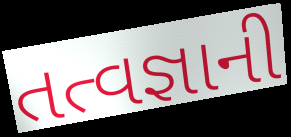
તત્વજ્ઞાની